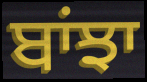
ਬਾਂਝਾ